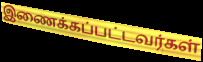
இணைக்கப்பட்டவர்கள்